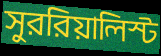
সুররিয়ালিস্ট